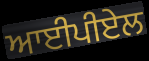
ਆਈਪੀਏਲ